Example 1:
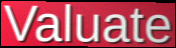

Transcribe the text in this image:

Valuate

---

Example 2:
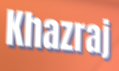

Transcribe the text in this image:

Khazraj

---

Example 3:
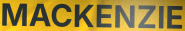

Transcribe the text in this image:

MACKENZIE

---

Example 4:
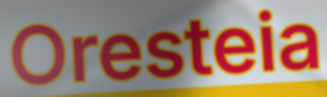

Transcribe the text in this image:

Oresteia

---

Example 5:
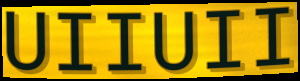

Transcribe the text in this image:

UIIUII